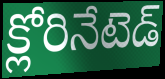
క్లోరినేటెడ్